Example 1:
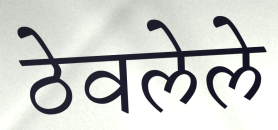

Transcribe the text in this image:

ठेवलेले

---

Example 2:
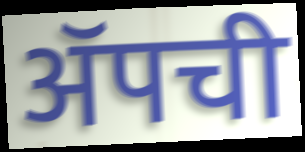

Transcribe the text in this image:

ॲपची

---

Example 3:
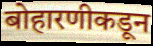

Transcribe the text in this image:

बोहारणीकडून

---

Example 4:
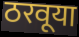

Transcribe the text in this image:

ठरवूया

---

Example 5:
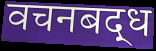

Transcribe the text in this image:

वचनबद्ध